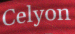
Celyon